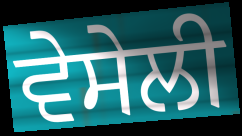
ਵੇਸੇਲੀ